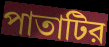
পাতাটির